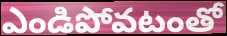
ఎండిపోవటంతో